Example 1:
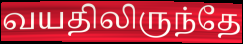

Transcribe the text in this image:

வயதிலிருந்தே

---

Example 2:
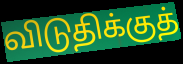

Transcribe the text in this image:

விடுதிக்குத்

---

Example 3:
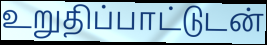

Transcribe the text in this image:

உறுதிப்பாட்டுடன்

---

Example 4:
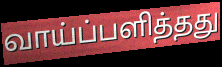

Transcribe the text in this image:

வாய்ப்பளித்தது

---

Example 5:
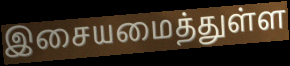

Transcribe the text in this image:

இசையமைத்துள்ள